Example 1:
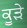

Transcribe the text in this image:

ਕੂੜੇ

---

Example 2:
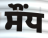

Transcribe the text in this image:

ਸੌਂਧ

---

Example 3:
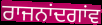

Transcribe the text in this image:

ਰਾਜਨਾਂਦਗਾਂਵ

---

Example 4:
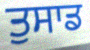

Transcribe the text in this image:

ਤੁਸਾਡ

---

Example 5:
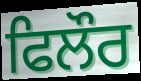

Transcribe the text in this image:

ਫਿਲੌਰ